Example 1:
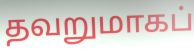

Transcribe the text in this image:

தவறுமாகப்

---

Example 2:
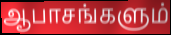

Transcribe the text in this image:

ஆபாசங்களும்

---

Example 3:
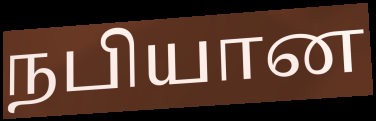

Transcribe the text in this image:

நபியான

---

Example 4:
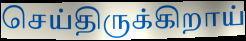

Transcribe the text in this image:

செய்திருக்கிறாய்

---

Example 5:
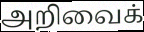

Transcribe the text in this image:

அறிவைக்